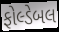
ફોલ્ડેબલ